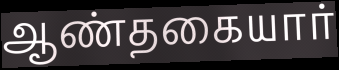
ஆண்தகையார்